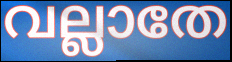
വല്ലാതേ